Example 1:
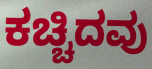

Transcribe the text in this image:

ಕಚ್ಚಿದವು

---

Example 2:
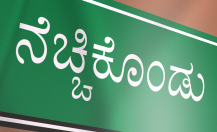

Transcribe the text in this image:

ನೆಚ್ಚಿಕೊಂಡು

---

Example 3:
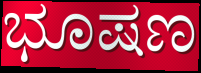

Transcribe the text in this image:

ಭೂಷಣ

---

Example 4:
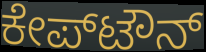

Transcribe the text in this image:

ಕೇಪ್‌ಟೌನ್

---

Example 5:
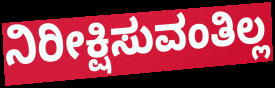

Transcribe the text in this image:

ನಿರೀಕ್ಷಿಸುವಂತಿಲ್ಲ